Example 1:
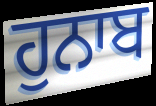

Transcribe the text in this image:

ਹੁਨਾਬ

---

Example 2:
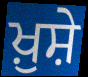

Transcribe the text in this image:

ਖ਼ੁਸ਼ੇ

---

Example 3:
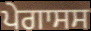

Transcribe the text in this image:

ਪੇਗਾਸਸ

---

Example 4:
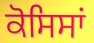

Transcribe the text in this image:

ਕੋਸਿਸਾਂ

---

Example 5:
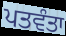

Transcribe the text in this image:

ਪਤਵੰਤਾ